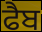
ਫੈਬ